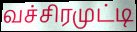
வச்சிரமுட்டி